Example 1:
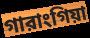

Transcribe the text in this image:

গারাংগিয়া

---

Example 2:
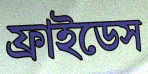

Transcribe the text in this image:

ফ্রাইডেস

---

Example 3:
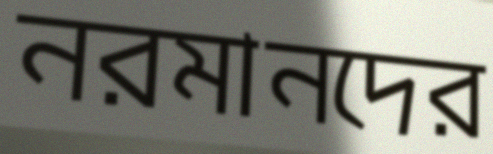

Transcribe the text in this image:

নরমানদের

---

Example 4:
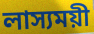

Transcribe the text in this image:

লাস্যময়ী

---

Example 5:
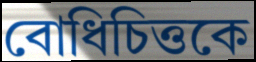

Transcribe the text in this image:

বোধিচিত্তকে